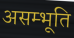
असम्भूति